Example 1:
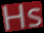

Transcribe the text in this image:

Hs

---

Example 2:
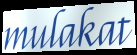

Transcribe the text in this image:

mulakat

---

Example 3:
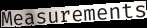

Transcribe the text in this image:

Measurements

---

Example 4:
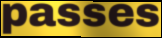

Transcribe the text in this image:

passes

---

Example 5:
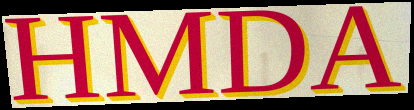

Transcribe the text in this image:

HMDA